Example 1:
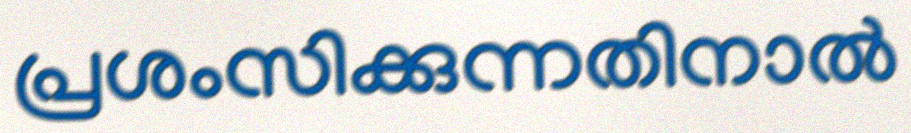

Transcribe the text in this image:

പ്രശംസിക്കുന്നതിനാൽ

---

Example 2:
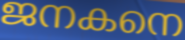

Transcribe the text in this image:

ജനകനെ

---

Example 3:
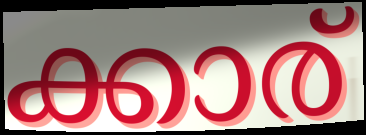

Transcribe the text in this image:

ക്കാര്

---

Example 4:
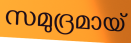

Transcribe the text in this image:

സമുദ്രമായ്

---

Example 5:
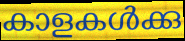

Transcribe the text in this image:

കാളകൾക്കു